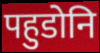
पहुडोनि